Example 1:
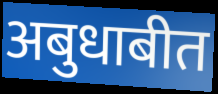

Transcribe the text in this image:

अबुधाबीत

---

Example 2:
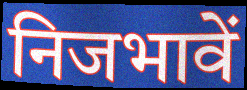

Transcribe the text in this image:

निजभावें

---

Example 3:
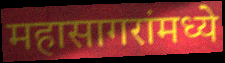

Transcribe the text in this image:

महासागरांमध्ये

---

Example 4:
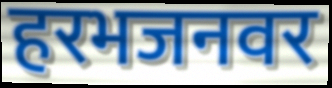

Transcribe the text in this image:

हरभजनवर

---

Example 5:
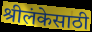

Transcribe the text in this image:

श्रीलंकेसाठी